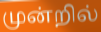
முன்றில்